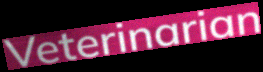
Veterinarian